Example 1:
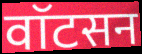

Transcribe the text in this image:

वॉटसन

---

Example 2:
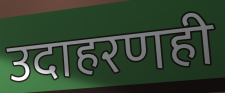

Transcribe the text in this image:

उदाहरणही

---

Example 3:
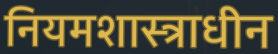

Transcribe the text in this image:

नियमशास्त्राधीन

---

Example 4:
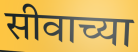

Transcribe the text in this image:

सीवाच्या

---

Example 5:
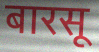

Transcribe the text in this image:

बारसू